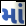
માં